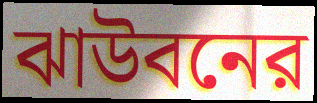
ঝাউবনের